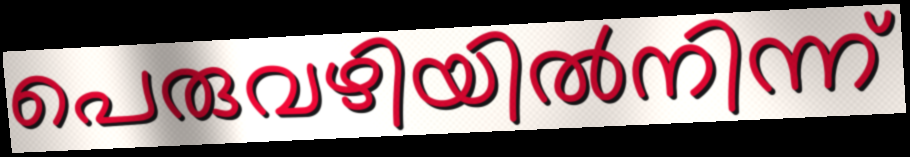
പെരുവഴിയിൽനിന്ന്